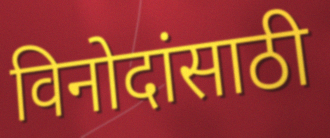
विनोदांसाठी